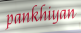
pankhiyan